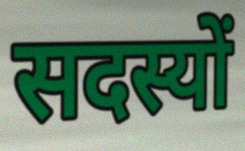
सदस्यों